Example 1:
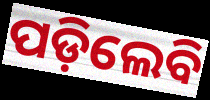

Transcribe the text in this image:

ପଡ଼ିଲେବି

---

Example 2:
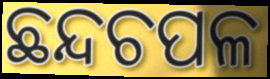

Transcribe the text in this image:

ଛନ୍ଦଚପଳ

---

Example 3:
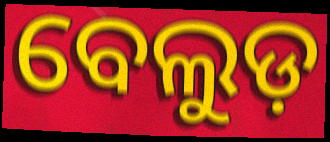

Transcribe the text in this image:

ବେଲୁଡ଼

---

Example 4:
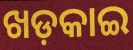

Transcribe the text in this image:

ଖଡ଼କାଇ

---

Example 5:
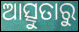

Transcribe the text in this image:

ଆତ୍ସୁତାରୁ